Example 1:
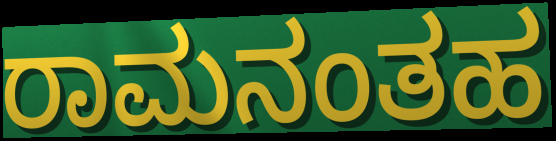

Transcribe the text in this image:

ರಾಮನಂತಹ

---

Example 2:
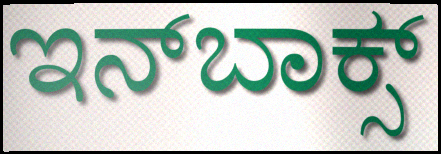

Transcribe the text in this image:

ಇನ್‍ಬಾಕ್ಸ್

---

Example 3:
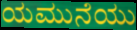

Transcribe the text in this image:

ಯಮುನೆಯು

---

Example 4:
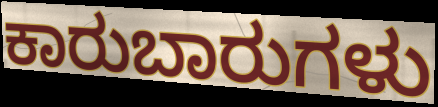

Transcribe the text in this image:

ಕಾರುಬಾರುಗಳು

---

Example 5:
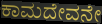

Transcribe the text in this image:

ಕಾಮದೇವನೇ